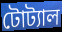
টোট্যাল